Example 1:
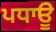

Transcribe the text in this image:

ਪਧਾਊ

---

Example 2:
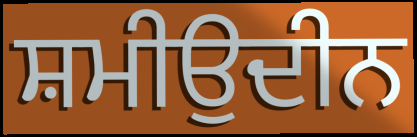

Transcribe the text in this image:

ਸ਼ਮੀਉਦੀਨ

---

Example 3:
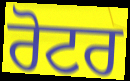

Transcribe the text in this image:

ਰੋਟਰ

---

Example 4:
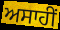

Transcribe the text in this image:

ਅਸਾਹੀਂ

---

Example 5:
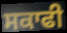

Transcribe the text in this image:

ਸਕਾਫੀ